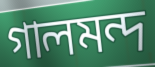
গালমন্দ